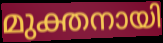
മുക്തനായി